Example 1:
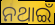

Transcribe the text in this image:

ନଥାଇଁ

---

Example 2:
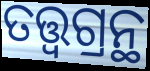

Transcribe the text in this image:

ତତ୍ତ୍ୱଗ୍ରନ୍ଥ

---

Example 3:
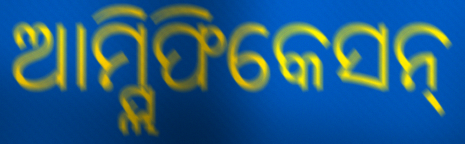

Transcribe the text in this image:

ଆମ୍ପ୍ଲିଫିକେସନ୍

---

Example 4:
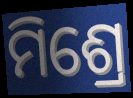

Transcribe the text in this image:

ମିଶ୍ରେ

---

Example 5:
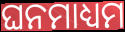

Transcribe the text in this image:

ଘନମାଧ୍ୟମ